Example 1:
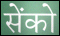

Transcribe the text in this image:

सेंको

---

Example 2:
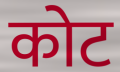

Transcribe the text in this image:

कोट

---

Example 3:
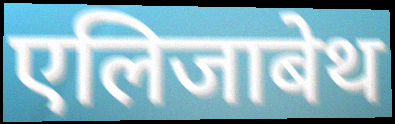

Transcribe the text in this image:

एलिजाबेथ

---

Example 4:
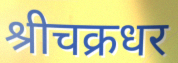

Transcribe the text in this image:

श्रीचक्रधर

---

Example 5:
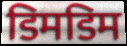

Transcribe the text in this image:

डिमडिम